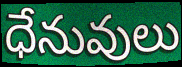
ధేనువులు